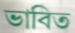
ভাবিত